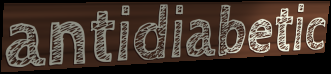
antidiabetic